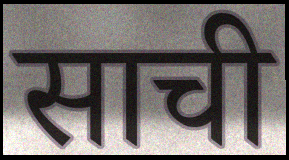
साची